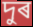
দুৰ